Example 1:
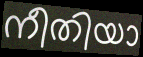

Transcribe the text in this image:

നീതിയാ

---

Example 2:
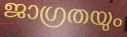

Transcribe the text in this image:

ജാഗ്രതയും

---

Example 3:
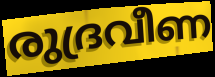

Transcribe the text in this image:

രുദ്രവീണ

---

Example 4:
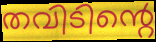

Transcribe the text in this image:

തവിടിന്റെ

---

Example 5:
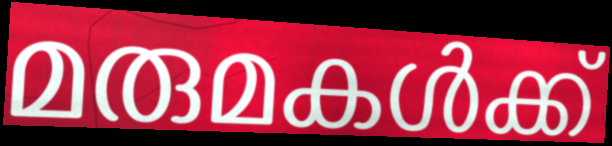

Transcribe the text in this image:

മരുമകൾക്ക്